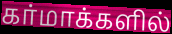
கர்மாக்களில்